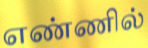
எண்ணில்